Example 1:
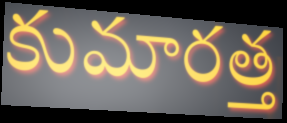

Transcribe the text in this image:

కుమారత్త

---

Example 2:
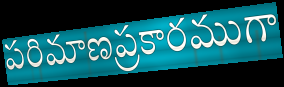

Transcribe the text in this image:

పరిమాణప్రకారముగా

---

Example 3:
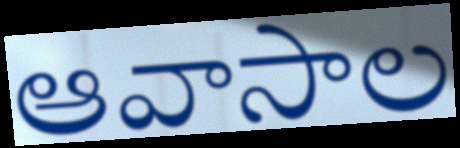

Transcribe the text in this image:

ఆవాసాల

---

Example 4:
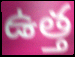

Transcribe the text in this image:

ఉత్త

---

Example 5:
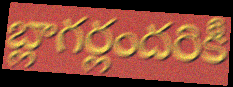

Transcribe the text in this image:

బ్లాగర్లందరికీ